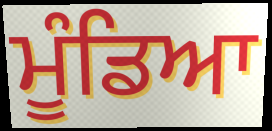
ਮੂੰਡਿਆ